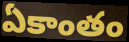
ఏకాంతం